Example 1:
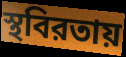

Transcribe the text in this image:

স্থবিরতায়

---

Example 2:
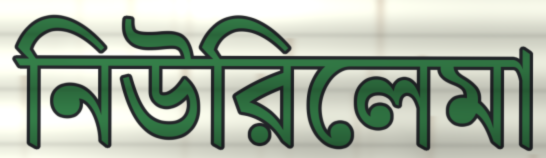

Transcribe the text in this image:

নিউরিলেমা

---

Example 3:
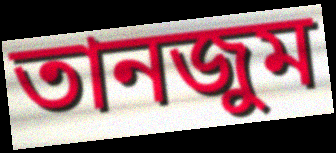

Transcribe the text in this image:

তানজুম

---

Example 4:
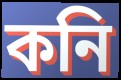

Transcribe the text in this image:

কনি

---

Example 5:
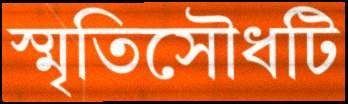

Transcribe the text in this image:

স্মৃতিসৌধটি